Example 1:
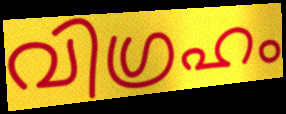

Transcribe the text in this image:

വിഗ്രഹം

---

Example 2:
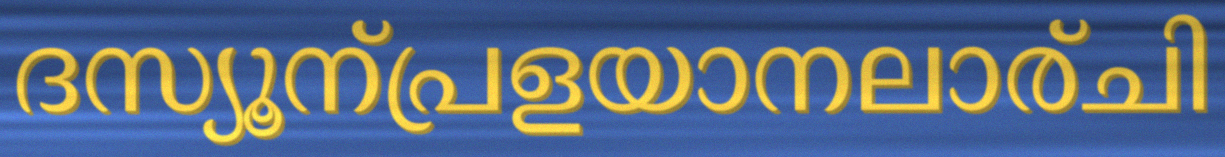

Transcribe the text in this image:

ദസ്യൂന്പ്രളയാനലാര്ചി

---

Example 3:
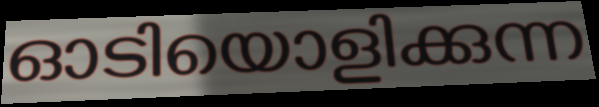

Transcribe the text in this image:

ഓടിയൊളിക്കുന്ന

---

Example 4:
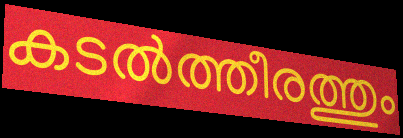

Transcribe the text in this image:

കടൽത്തീരത്തും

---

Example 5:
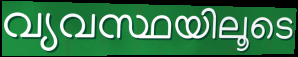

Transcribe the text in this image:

വ്യവസ്ഥയിലൂടെ